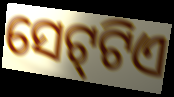
ସେଟ୍‍ଟିଏ